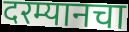
दरम्यानचा